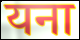
यना